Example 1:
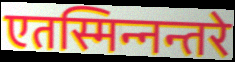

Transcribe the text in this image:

एतस्मिन्नन्तरे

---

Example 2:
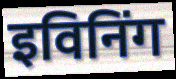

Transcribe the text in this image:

इविनिंग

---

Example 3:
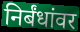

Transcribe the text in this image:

निर्बंधांवर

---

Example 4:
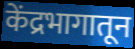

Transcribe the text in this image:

केंद्रभागातून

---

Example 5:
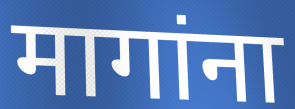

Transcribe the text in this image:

मागांना